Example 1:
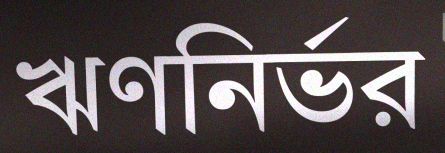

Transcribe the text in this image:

ঋণনির্ভর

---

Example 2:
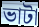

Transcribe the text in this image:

ভাটা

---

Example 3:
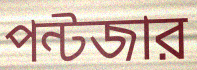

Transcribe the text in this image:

পন্টজার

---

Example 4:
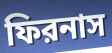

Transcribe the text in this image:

ফিরনাস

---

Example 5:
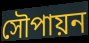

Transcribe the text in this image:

সৌপায়ন